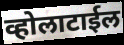
व्होलाटाईल